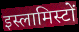
इस्लामिस्टों